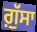
ਗ਼ੁੱਸਾ